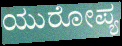
ಯುರೋಪ್ಯ